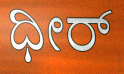
ಧೀರ್